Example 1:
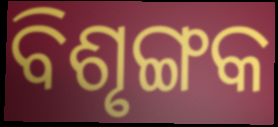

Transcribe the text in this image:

ବିଶୃଙ୍ଗକ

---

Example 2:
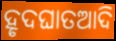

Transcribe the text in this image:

ହୃଦଘାତଆଦି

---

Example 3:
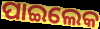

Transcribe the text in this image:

ପାଇଲେକ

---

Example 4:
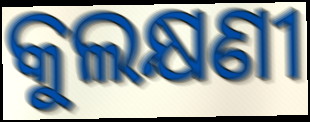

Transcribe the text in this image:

କୁଲକ୍ଷଣୀ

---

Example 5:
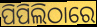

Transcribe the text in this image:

ପିପିଲିଠାରେ